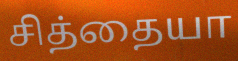
சித்தையா